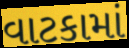
વાટકામાં